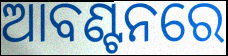
ଆବଣ୍ଟନରେ